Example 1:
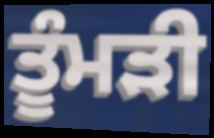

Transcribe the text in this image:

ਤੂੰਮੜੀ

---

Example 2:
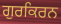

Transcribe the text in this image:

ਗੁਰਕਿਰਨ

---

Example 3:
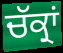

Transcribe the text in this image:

ਚੱਕ੍ਰਾਂ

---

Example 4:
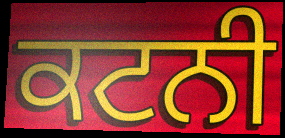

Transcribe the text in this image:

ਕਟਨੀ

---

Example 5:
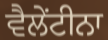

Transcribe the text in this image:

ਵੈਲੇਂਟੀਨਾ